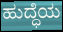
ಹುದ್ಧೆಯ